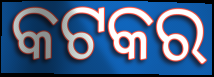
କଟକର